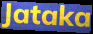
Jataka